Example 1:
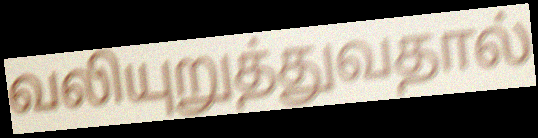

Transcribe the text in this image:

வலியுறுத்துவதால்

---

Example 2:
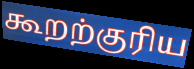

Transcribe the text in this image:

கூறற்குரிய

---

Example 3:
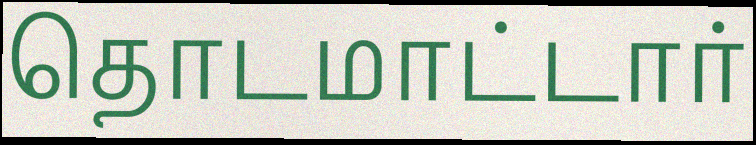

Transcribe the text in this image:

தொடமாட்டார்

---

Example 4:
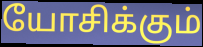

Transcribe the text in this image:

யோசிக்கும்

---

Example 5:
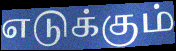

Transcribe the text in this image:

எடுக்கும்